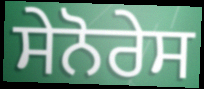
ਸੇਨੋਰੇਸ